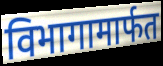
विभागामार्फत